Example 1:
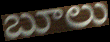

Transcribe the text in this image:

బూలు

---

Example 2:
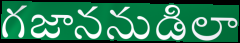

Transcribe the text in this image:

గజాననుడిలా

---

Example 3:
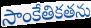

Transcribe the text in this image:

సాంకేతికతను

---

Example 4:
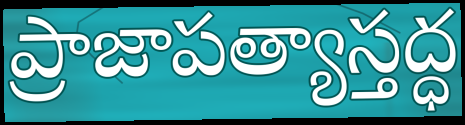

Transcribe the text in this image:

ప్రాజాపత్యాస్తద్ధ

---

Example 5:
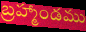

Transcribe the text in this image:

బ్రహ్మాండము